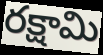
రక్షామి